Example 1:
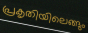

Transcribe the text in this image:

പ്രകൃതിയിലെങ്ങും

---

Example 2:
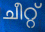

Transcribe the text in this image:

ചീറ്റ്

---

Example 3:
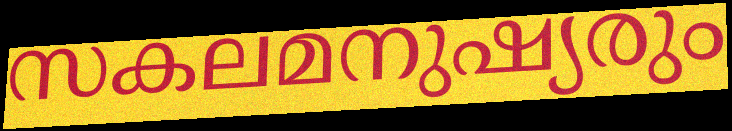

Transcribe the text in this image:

സകലമനുഷ്യരും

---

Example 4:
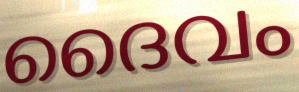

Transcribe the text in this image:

ദൈവം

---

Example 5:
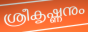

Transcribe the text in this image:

ശ്രീകൃഷ്ണനും